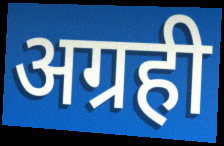
अग्रही